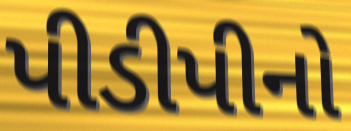
પીડીપીનો